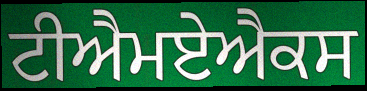
ਟੀਐਮਏਐਕਸ